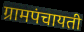
ग्रामपंचायती